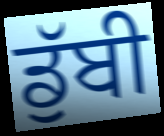
ਡੁੱਬੀ